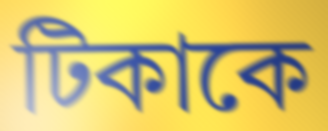
টিকাকে